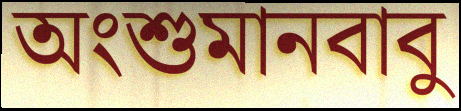
অংশুমানবাবু